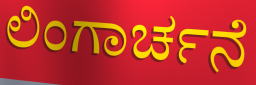
ಲಿಂಗಾರ್ಚನೆ